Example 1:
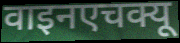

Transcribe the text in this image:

वाइनएचक्यू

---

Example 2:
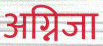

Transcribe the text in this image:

अग्निजा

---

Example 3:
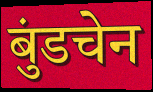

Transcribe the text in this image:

बुंडचेन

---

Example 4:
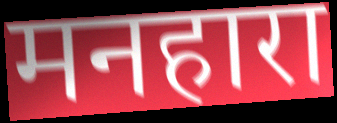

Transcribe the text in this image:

मनहारा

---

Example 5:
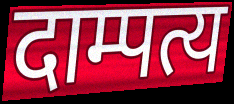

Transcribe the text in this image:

दाम्पत्य